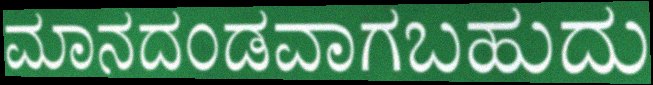
ಮಾನದಂಡವಾಗಬಹುದು